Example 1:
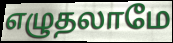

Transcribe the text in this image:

எழுதலாமே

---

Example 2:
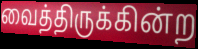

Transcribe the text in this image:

வைத்திருக்கின்ற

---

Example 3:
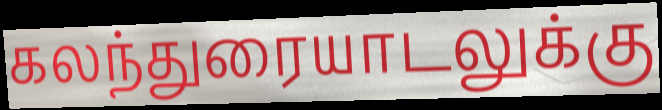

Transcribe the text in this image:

கலந்துரையாடலுக்கு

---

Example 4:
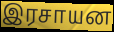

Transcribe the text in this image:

இரசாயன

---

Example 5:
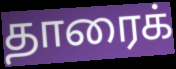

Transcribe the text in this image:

தாரைக்